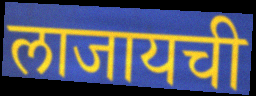
लाजायची